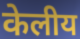
केलीय